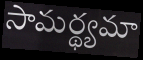
సామర్థ్యమా